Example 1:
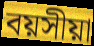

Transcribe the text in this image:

বয়সীয়া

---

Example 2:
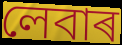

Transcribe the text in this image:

লেবাৰ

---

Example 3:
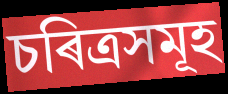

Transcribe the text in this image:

চৰিত্ৰসমূহ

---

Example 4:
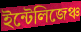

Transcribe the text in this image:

ইন্টেলিজেঞ্চ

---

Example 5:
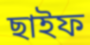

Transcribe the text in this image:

ছাইফ